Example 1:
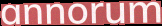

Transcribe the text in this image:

annorum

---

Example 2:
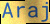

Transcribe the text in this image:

Araj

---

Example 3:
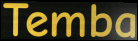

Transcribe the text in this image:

Temba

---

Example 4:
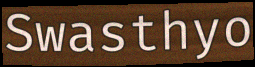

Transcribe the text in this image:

Swasthyo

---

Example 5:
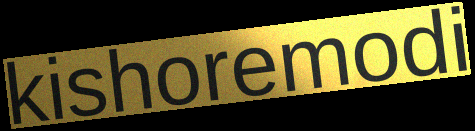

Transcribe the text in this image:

kishoremodi